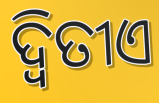
ଦ୍ୱିତୀଏ